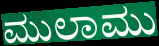
ಮುಲಾಮು